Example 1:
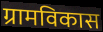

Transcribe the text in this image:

ग्रामविकास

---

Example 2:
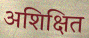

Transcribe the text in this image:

अशिक्षित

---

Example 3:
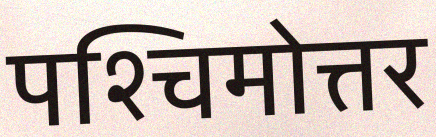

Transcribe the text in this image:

पश्चिमोत्तर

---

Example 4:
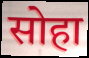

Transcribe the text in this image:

सोहा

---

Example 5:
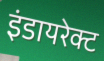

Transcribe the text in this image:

इंडायरेक्ट